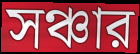
সঞ্চার